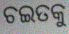
ଚଇତକୁ